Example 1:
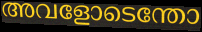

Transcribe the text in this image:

അവളോടെന്തോ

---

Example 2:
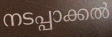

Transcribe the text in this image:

നടപ്പാക്കൽ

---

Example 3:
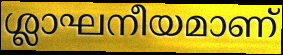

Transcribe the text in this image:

ശ്ലാഘനീയമാണ്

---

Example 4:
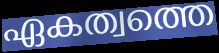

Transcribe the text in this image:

ഏകത്വത്തെ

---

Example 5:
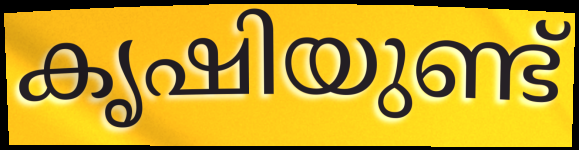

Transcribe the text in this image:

കൃഷിയുണ്ട്